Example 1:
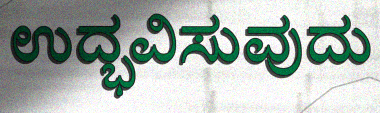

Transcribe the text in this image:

ಉದ್ಭವಿಸುವುದು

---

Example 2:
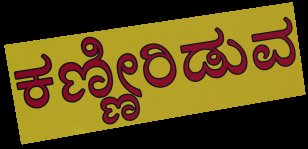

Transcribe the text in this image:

ಕಣ್ಣೀರಿಡುವ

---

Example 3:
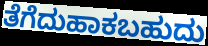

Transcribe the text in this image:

ತೆಗೆದುಹಾಕಬಹುದು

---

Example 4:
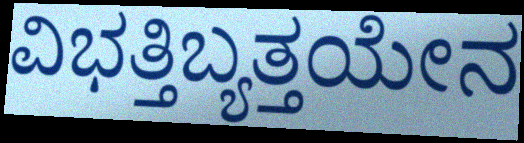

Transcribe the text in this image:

ವಿಭತ್ತಿಬ್ಯತ್ತಯೇನ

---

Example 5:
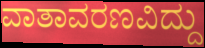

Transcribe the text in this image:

ವಾತಾವರಣವಿದ್ದು